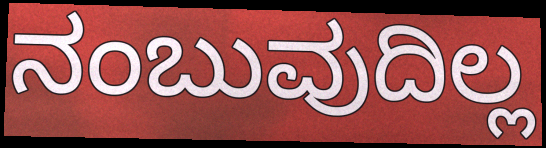
ನಂಬುವುದಿಲ್ಲ